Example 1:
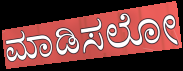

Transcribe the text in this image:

ಮಾಡಿಸಲೋ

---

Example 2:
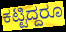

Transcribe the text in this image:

ಕಟ್ಟಿದ್ದರೂ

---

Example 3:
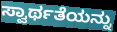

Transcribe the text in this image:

ಸ್ವಾರ್ಥತೆಯನ್ನು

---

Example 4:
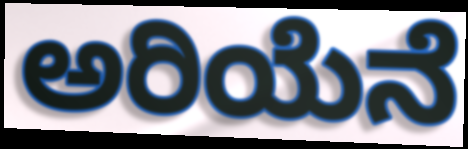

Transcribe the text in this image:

ಅರಿಯೆನೆ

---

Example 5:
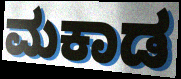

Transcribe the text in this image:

ಮಕಾಡ